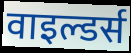
वाइल्डर्स